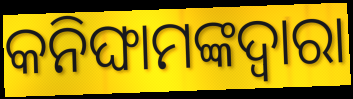
କନିଙ୍ଘାମଙ୍କଦ୍ଵାରା